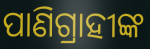
ପାଣିଗ୍ରାହୀଙ୍କ